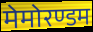
मेमोरण्डम